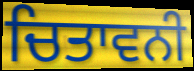
ਚਿਤਾਵਨੀ